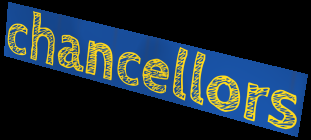
chancellors